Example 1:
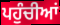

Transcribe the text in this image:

ਪਹੁੰਚੀਆਂ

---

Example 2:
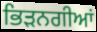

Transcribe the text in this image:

ਭਿੜਨਗੀਆਂ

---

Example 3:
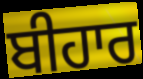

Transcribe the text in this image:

ਬੀਹਾਰ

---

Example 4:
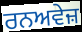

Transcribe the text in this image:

ਰਨਅਵੇਜ਼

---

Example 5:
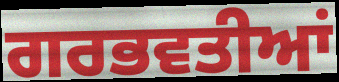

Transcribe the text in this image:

ਗਰਭਵਤੀਆਂ